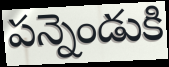
పన్నెండుకి